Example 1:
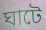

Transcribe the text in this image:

ঘাটে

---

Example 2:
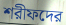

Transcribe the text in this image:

শরীফদের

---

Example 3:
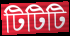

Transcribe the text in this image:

টিটিটি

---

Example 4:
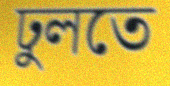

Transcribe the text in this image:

ঢুলতে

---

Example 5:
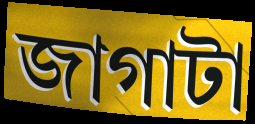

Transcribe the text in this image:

জাগাটা